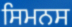
ਸਿਮਨਸ